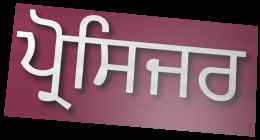
ਪ੍ਰੋਸਿਜਰ